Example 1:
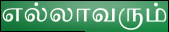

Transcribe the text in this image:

எல்லாவரும்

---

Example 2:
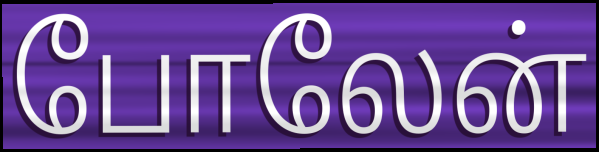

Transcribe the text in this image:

போலேன்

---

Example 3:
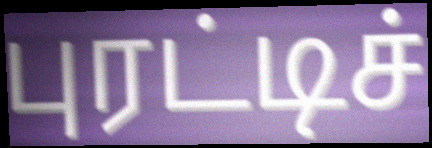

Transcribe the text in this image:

புரட்டிச்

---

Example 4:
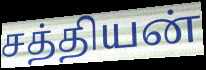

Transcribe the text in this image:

சத்தியன்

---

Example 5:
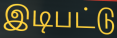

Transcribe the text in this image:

இடிபட்டு